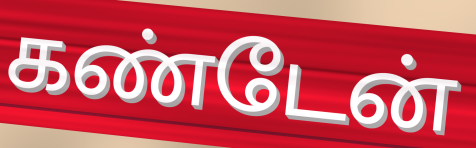
கண்டேன்